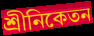
শ্রীনিকেতন